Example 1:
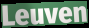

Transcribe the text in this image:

Leuven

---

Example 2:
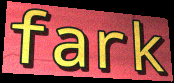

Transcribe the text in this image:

fark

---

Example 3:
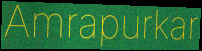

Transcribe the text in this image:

Amrapurkar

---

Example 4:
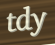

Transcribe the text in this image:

tdy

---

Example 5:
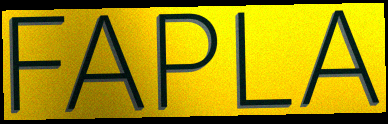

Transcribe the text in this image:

FAPLA